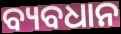
ବ୍ୟବଧାନ